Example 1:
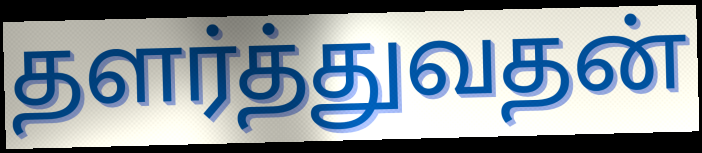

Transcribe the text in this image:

தளர்த்துவதன்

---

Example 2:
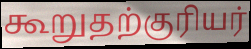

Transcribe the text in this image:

கூறுதற்குரியர்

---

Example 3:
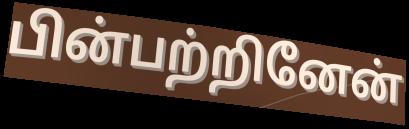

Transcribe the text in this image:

பின்பற்றினேன்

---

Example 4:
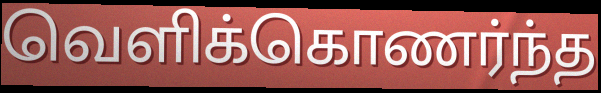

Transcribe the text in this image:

வெளிக்கொணர்ந்த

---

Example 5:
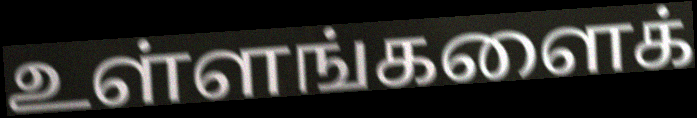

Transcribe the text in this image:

உள்ளங்களைக்